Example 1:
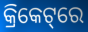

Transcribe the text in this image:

କ୍ରିକେଟ୍‌ରେ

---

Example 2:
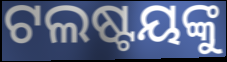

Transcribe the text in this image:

ଟଲଷ୍ଟୟଙ୍କୁ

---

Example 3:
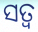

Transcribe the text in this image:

ସତ୍ୱ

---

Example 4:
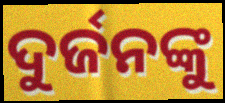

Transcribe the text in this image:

ଦୁର୍ଜନଙ୍କୁ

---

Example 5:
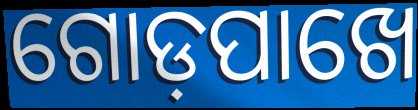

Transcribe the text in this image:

ଗୋଡ଼ପାଖେ